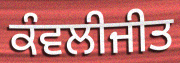
ਕੰਵਲੀਜੀਤ